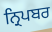
ਨ੍ਰਿਪਬਰ